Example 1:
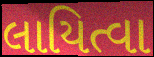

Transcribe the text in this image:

લાયિત્વા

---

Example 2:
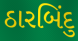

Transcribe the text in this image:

ઠારબિંદુ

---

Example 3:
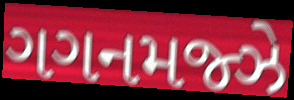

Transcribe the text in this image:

ગગનમજ્ઝે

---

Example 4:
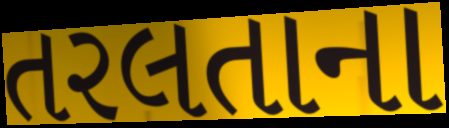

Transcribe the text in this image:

તરલતાના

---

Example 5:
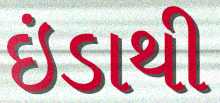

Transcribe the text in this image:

ઇંડાથી